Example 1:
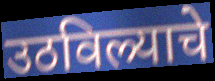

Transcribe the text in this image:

उठविल्याचे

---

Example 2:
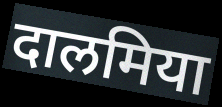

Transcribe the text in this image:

दालमिया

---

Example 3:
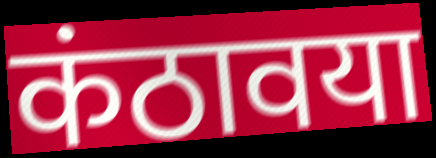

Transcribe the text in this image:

कंठावया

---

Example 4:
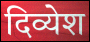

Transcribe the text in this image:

दिव्येश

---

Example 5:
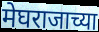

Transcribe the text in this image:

मेघराजाच्या